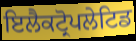
ਇਲੈਕਟ੍ਰੋਪਲੇਟਿਡ